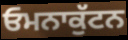
ਓਮਨਾਕੁੱਟਨ